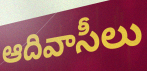
ఆదివాసీలు